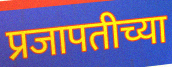
प्रजापतीच्या